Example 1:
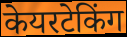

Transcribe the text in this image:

केयरटेकिंग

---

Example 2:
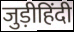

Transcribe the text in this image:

जुड़ीहिंदी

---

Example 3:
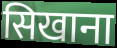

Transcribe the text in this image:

सिखाना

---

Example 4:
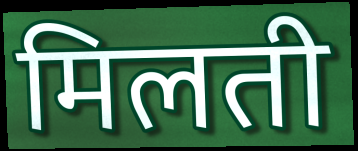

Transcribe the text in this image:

मिलती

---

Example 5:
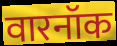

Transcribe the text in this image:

वारनॉक